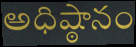
అధిష్ఠానం